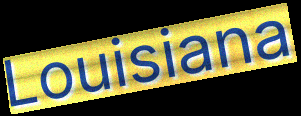
Louisiana